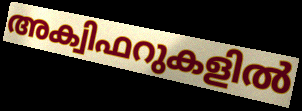
അക്വിഫറുകളിൽ